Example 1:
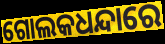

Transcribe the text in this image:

ଗୋଲକଧନ୍ଦାରେ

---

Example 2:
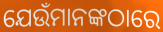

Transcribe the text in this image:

ଯେଉଁମାନଙ୍କଠାରେ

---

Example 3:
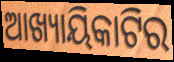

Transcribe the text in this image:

ଆଖ୍ୟାୟିକାଟିର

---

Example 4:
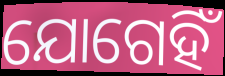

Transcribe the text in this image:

ଯୋଗେହିଁ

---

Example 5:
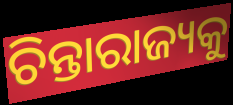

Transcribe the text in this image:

ଚିନ୍ତାରାଜ୍ୟକୁ